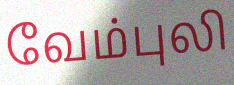
வேம்புலி